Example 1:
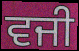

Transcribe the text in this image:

ਵਜੀ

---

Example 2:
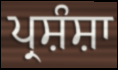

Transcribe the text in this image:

ਪ੍ਰਸ਼ੰਸ਼ਾ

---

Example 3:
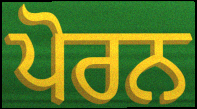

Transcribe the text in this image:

ਪੋਰਨ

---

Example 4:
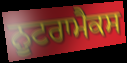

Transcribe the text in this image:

ਨੂਟਰਾਮੈਕਸ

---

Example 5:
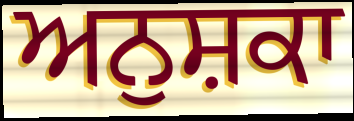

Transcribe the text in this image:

ਅਨੁਸ਼ਕਾ